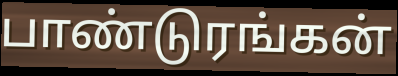
பாண்டுரங்கன்